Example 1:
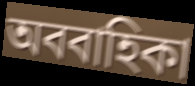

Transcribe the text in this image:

অববাহিকা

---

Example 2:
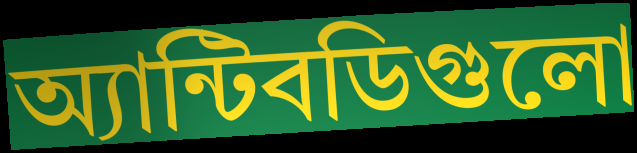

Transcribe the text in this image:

অ্যান্টিবডিগুলো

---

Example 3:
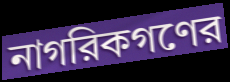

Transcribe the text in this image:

নাগরিকগণের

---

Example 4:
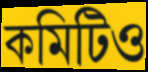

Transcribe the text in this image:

কমিটিও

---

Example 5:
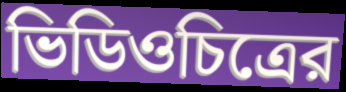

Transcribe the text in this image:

ভিডিওচিত্রের